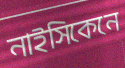
নাইসিকেনে